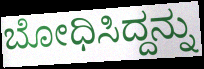
ಬೋಧಿಸಿದ್ದನ್ನು